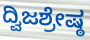
ದ್ವಿಜಶ್ರೇಷ್ಠ